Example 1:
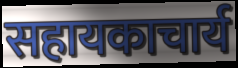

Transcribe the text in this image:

सहायकाचार्य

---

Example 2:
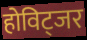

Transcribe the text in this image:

होविट्जर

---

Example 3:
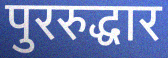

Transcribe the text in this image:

पुररुद्धार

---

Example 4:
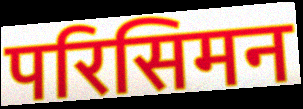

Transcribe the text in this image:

परिसिमन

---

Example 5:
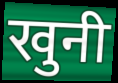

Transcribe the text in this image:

खुनी